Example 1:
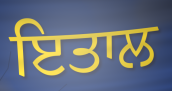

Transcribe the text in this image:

ਇਤਾਲ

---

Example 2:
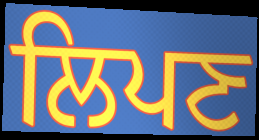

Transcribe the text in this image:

ਲਿਪਣ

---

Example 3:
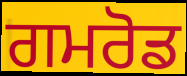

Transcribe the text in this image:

ਗਮਰੋਡ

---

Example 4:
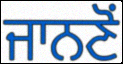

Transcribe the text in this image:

ਜਾਨਣੋਂ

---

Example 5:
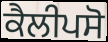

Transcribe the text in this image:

ਕੈਲੀਪਸੋ